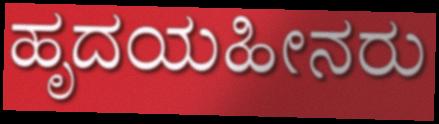
ಹೃದಯಹೀನರು